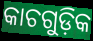
କାଚଗୁଡ଼ିକ